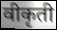
वीकृती